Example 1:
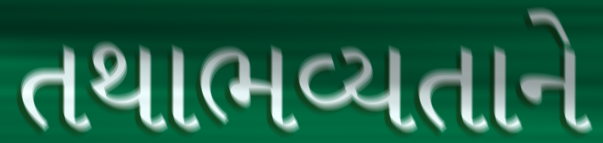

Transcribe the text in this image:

તથાભવ્યતાને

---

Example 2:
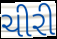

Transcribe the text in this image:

ચીરી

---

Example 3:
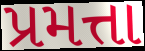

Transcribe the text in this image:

પ્રમત્તા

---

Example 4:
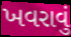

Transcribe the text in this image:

ખવરાવું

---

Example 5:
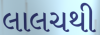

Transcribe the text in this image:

લાલચથી